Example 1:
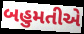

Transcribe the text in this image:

બહુમતીએ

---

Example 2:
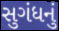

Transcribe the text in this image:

સુગંધનું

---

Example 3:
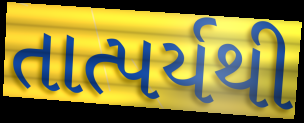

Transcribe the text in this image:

તાત્પર્યથી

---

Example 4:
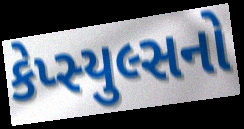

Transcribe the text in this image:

કેપ્સ્યુલ્સનો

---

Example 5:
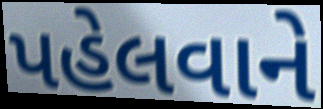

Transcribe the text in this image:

પહેલવાને